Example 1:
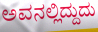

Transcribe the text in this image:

ಅವನಲ್ಲಿದ್ದುದು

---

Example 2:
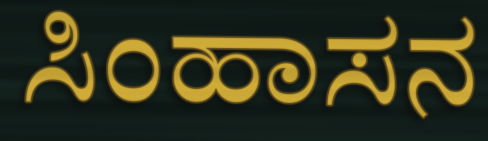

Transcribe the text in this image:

ಸಿಂಹಾಸನ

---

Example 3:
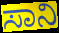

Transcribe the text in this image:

ಸಾನಿ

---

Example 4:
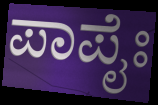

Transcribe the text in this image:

ಪಾಪೈಃ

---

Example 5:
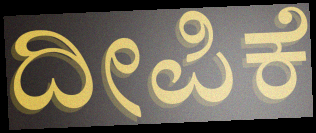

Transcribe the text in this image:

ದೀಪಿಕೆ